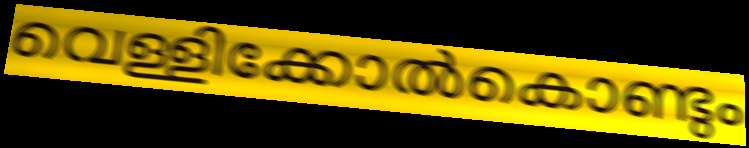
വെള്ളിക്കോൽകൊണ്ടും